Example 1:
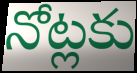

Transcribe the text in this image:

నోట్లకు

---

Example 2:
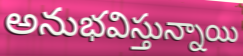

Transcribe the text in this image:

అనుభవిస్తున్నాయి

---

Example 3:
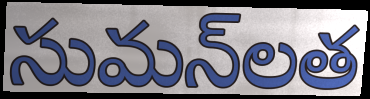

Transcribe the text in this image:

సుమన్‌లత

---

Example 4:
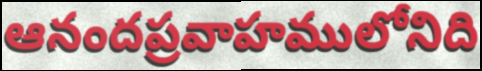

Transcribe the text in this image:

ఆనందప్రవాహములోనిది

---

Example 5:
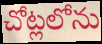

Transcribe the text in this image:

చోట్లలోను